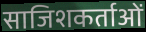
साजिशकर्ताओं